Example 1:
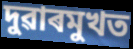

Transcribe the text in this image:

দুৱাৰমুখত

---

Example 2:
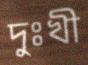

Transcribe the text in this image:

দুঃখী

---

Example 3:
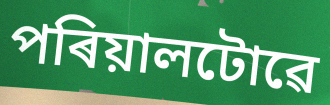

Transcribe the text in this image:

পৰিয়ালটোৱে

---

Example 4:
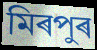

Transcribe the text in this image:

মিৰপুৰ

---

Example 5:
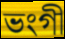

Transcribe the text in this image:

ভংগী